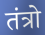
तंत्रो